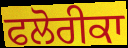
ਫਲੋਰੀਕਾ